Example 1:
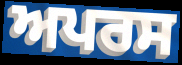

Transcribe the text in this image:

ਅਪਰਸ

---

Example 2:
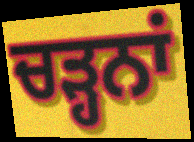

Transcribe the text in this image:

ਚੜ੍ਹਨਾਂ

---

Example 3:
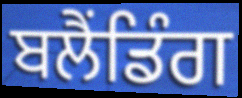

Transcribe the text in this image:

ਬਲੈਂਡਿੰਗ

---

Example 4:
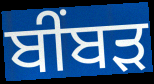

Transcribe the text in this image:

ਬੀਂਬੜ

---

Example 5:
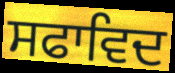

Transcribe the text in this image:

ਸਫਾਵਿਦ